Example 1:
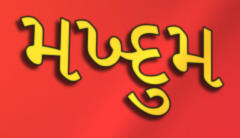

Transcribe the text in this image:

મખ્દુમ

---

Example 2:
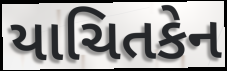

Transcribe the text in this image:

યાચિતકેન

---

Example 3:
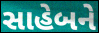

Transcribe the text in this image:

સાહેબને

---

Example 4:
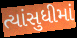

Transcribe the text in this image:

ત્યાંસુધીમાં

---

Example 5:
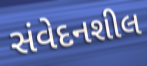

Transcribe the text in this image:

સંવેદનશીલ